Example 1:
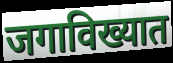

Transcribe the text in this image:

जगाविख्यात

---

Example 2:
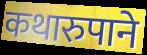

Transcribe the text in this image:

कथारुपाने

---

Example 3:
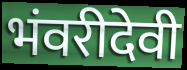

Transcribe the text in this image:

भंवरीदेवी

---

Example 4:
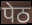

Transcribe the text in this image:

पेठ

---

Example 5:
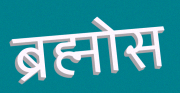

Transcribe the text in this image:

ब्रह्मोस